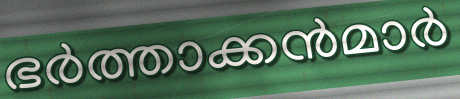
ഭർത്താക്കൻമാർ